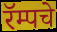
रॅम्पचे